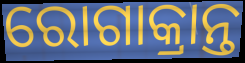
ରୋଗାକ୍ରାନ୍ତ